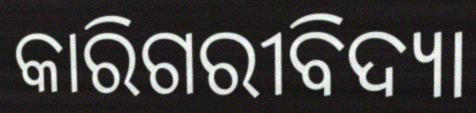
କାରିଗରୀବିଦ୍ୟା